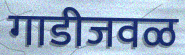
गाडीजवळ